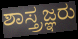
ಶಾಸ್ತ್ರಜ್ಞರು